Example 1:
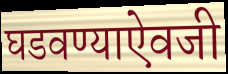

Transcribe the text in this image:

घडवण्याऐवजी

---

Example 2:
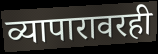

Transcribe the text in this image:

व्यापारावरही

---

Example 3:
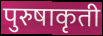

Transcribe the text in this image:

पुरुषाकृती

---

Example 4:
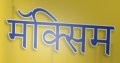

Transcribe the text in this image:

मॅक्सिम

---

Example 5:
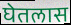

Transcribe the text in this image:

घेतलास